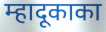
म्हादूकाका